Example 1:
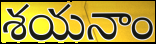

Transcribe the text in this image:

శయనాం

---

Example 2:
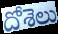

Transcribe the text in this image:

దోశెలు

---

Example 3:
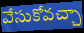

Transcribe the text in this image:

వేసుకోవచ్చా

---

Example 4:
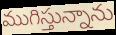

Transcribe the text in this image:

ముగిస్తున్నాను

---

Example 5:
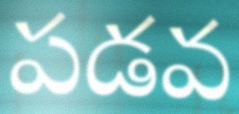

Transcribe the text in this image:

పడవ